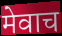
मेवाच